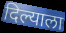
दिल्याला